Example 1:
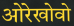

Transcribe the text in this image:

ओरेखोवो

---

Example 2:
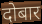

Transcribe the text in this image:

दोबार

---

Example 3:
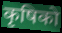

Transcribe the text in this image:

कृषिको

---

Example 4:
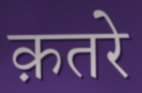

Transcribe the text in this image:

क़तरे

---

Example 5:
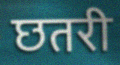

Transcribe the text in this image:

छतरी